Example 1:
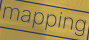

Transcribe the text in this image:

mapping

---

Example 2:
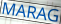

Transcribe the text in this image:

MARAG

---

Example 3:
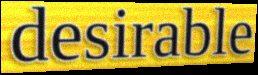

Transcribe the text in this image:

desirable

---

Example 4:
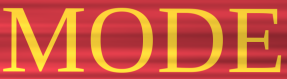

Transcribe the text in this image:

MODE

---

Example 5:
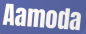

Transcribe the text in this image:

Aamoda